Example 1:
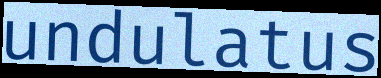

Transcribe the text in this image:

undulatus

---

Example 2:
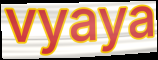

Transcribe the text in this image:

vyaya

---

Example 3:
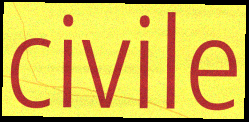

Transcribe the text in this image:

civile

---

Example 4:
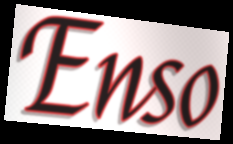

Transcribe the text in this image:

Enso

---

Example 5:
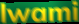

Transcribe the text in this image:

lwami